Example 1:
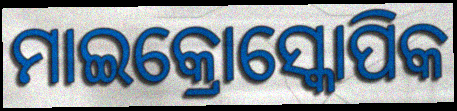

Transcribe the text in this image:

ମାଇକ୍ରୋସ୍କୋପିକ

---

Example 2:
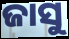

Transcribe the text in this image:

ଜାସୁ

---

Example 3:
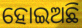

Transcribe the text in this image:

ହୋଇଅଛି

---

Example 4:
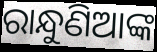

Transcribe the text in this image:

ରାନ୍ଧୁଣିଆଙ୍କ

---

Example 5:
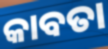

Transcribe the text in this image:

କାବତା